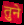
तुने